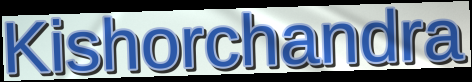
Kishorchandra